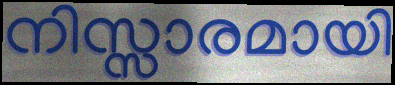
നിസ്സാരമായി